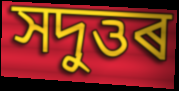
সদুত্তৰ